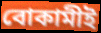
বোকামীই